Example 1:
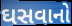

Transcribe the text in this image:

ઘસવાનો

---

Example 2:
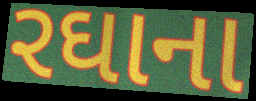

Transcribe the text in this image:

રઘાના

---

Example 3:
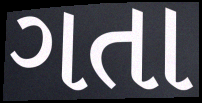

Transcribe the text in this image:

ગતા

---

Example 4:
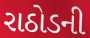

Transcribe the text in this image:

રાઠોડની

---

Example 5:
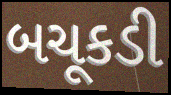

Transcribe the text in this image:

બચૂકડી